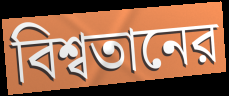
বিশ্বতানের